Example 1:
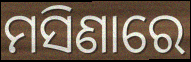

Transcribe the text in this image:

ମସିଣାରେ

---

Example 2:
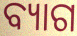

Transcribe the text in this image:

ବ୍ୟାଗ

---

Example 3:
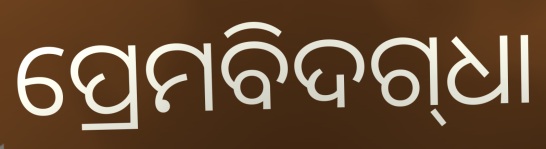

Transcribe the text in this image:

ପ୍ରେମବିଦଗ୍‍ଧା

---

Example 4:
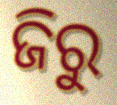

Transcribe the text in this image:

ଜିରୁ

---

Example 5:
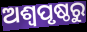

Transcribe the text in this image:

ଅଶ୍ଵପୃଷ୍ଠରୁ